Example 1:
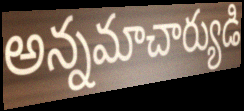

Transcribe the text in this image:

అన్నమాచార్యుడి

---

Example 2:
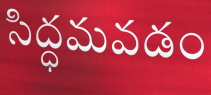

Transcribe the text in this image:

సిద్ధమవడం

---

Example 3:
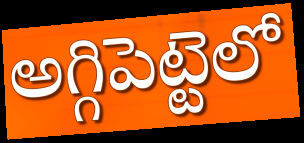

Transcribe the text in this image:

అగ్గిపెట్టెలో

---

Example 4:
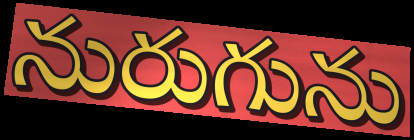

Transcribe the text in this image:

నురుగును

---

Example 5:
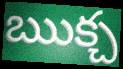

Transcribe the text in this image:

ఋక్చ